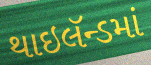
થાઇલૅન્ડમાં